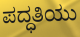
ಪದ್ಧತಿಯು